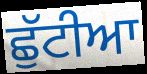
ਛੁੱਟੀਆ